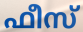
ഫീസ്